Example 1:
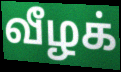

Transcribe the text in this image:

வீழக்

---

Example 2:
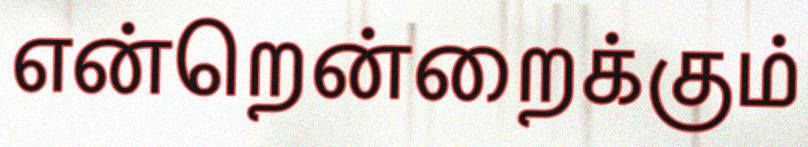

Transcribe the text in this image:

என்றென்றைக்கும்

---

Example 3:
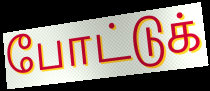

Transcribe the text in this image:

போட்டுக்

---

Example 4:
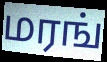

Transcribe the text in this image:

மரங்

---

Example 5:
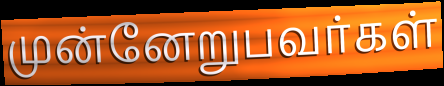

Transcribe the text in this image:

முன்னேறுபவர்கள்